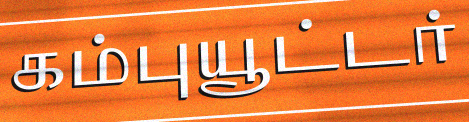
கம்புயூட்டர்